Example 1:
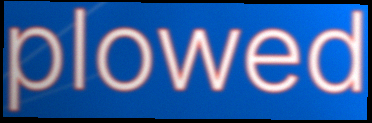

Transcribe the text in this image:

plowed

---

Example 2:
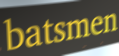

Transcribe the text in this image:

batsmen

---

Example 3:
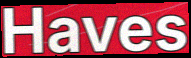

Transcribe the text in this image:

Haves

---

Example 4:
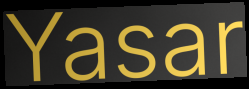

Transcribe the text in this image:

Yasar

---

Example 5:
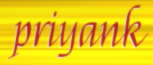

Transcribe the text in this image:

priyank